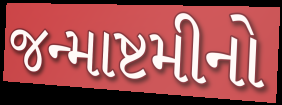
જન્માષ્ટમીનો